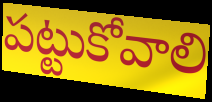
పట్టుకోవాలి